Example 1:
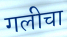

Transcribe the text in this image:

गलीचा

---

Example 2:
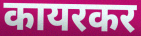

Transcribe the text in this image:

कायरकर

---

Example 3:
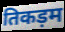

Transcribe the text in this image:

तिकड़म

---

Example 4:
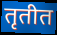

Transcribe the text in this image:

तृतीत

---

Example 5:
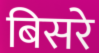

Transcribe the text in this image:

बिसरे